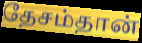
தேசம்தான்